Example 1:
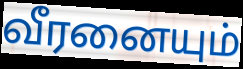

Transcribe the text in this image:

வீரனையும்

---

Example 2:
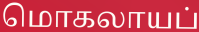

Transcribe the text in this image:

மொகலாயப்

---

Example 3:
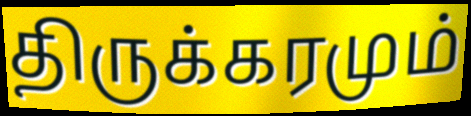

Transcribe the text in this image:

திருக்கரமும்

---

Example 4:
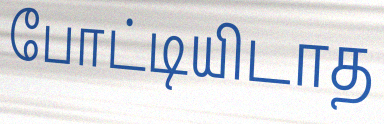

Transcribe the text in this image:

போட்டியிடாத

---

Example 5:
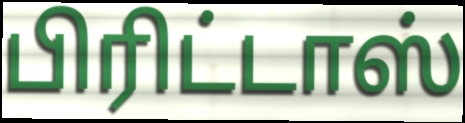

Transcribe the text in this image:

பிரிட்டாஸ்